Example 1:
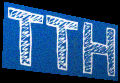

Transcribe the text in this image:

TTH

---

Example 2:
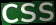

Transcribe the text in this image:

css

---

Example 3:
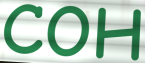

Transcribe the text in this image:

COH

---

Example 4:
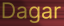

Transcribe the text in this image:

Dagar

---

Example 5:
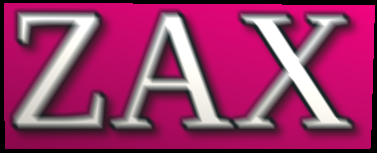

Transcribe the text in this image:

ZAX